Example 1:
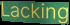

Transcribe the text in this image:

Lacking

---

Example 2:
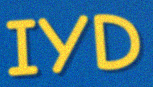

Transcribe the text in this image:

IYD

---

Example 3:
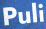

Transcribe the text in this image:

Puli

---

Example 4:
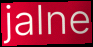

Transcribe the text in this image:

jalne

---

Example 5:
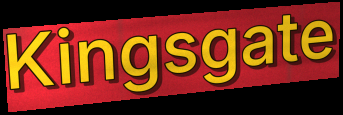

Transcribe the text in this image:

Kingsgate